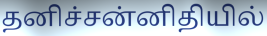
தனிச்சன்னிதியில்